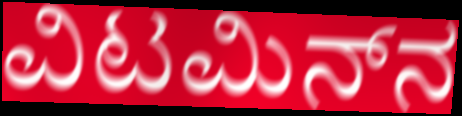
ವಿಟಮಿನ್‌ನ